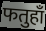
फतुहाँ